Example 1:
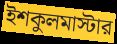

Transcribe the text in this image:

ইশকুলমাস্টার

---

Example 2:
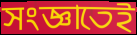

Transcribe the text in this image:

সংজ্ঞাতেই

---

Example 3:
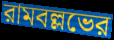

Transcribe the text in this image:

রামবল্লভের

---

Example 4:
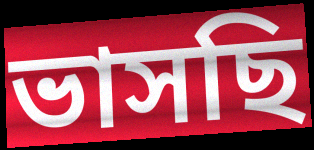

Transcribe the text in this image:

ভাসছি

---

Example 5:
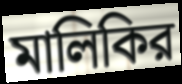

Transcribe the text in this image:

মালিকির